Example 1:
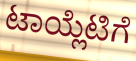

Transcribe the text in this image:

ಟಾಯ್ಲೆಟಿಗೆ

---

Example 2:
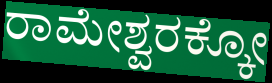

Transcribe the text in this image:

ರಾಮೇಶ್ವರಕ್ಕೋ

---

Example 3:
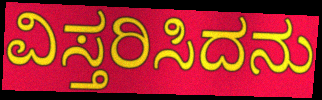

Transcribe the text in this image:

ವಿಸ್ತರಿಸಿದನು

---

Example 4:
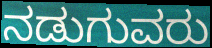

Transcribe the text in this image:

ನಡುಗುವರು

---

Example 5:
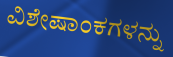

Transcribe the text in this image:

ವಿಶೇಷಾಂಕಗಳನ್ನು